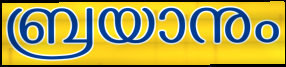
ബ്രയാനും